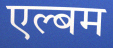
एल्बम